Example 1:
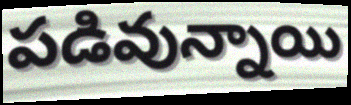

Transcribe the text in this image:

పడివున్నాయి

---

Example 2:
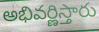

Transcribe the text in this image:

అభివర్ణిస్తారు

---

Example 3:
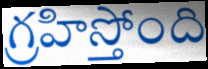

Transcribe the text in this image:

గ్రహిస్తోంది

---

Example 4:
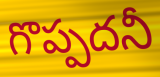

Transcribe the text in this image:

గొప్పదనీ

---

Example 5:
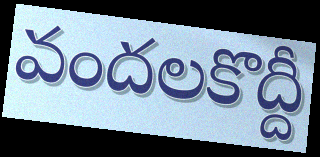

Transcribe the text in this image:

వందలకొద్దీ